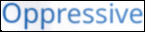
Oppressive